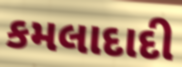
કમલાદાદી